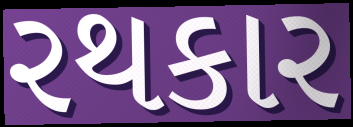
રથકાર